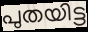
പുതയിട്ട